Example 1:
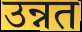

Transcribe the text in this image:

उन्नत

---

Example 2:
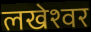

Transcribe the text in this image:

लखेश्वर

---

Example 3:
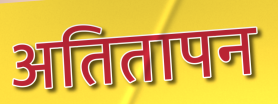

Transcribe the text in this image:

अतितापन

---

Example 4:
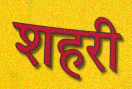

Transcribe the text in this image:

शहरी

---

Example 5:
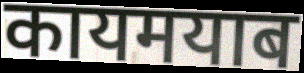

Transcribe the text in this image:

कायमयाब